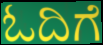
ಓದಿಗೆ